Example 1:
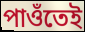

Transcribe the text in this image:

পাওঁতেই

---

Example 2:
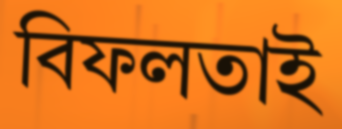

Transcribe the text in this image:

বিফলতাই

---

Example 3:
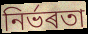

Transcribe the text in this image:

নিৰ্ভৰতা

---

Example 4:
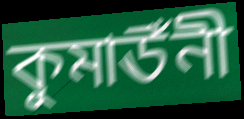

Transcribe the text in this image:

কুমাঊঁনী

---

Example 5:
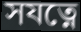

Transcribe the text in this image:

সযত্নে